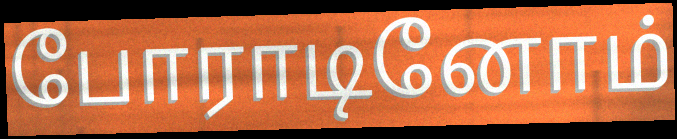
போராடினோம்